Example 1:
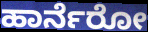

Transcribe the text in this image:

ಹಾರ್ನೆರೋ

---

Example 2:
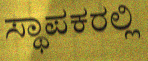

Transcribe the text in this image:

ಸ್ಥಾಪಕರಲ್ಲಿ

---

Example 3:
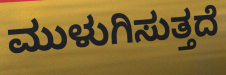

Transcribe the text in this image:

ಮುಳುಗಿಸುತ್ತದೆ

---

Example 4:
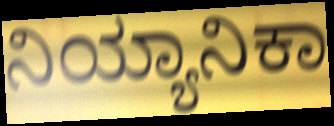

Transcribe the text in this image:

ನಿಯ್ಯಾನಿಕಾ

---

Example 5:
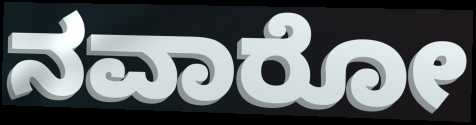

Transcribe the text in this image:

ನವಾರೋ